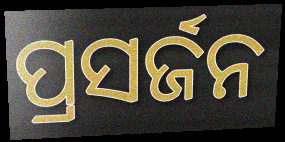
ପ୍ରସର୍ଜନ